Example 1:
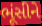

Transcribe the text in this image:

ભૂંસીને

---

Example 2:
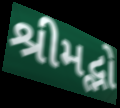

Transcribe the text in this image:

શ્રીમદ્ભો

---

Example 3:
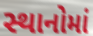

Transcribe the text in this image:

સ્થાનોમાં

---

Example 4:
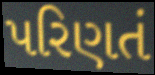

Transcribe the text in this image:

પરિણતં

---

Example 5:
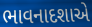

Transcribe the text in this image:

ભાવનાદશાએ